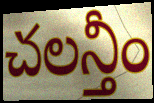
చలన్తీం